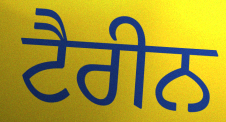
ਟੈਰੀਨ